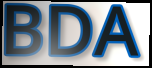
BDA